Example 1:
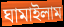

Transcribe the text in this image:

ঘামাইলাম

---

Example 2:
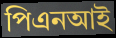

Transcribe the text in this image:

পিএনআই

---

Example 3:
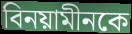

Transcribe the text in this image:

বিনয়ামীনকে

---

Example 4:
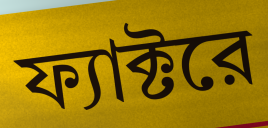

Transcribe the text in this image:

ফ্যাক্টরে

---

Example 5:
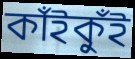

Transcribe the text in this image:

কাঁইকুঁই